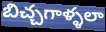
బిచ్చగాళ్ళలా